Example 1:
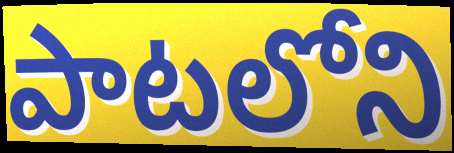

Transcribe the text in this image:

పాటలోని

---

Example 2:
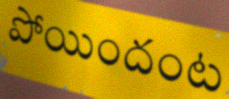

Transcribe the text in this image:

పోయిందంట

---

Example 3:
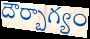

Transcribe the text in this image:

దౌర్బాగ్యం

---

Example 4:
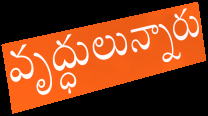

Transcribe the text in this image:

వృద్ధులున్నారు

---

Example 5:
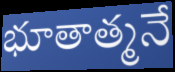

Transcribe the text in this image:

భూతాత్మనే